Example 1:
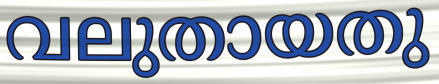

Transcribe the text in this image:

വലുതായതു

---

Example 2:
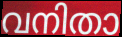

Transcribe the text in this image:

വനിതാ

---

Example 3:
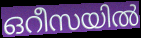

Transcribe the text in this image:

ഒറീസയിൽ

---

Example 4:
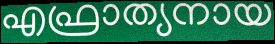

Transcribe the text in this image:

എഫ്രാത്യനായ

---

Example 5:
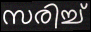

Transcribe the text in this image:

സരിച്ച്